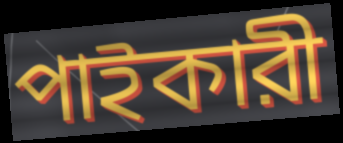
পাইকারী